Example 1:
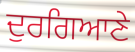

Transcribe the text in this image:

ਦੁਰਗਿਆਣੇ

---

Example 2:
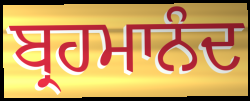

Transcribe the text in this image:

ਬ੍ਰਹਮਾਨੰਦ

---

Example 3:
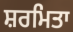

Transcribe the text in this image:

ਸ਼ਰਮਿਤਾ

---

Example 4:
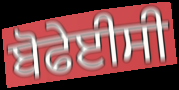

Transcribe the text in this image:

ਬੋਫੇਈਸੀ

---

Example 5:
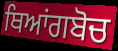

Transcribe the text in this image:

ਥਿਆਂਗਬੋਚ